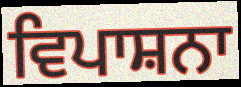
ਵਿਪਾਸ਼ਨਾ